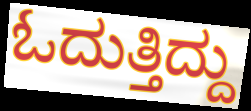
ಓದುತ್ತಿದ್ದು